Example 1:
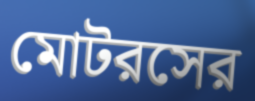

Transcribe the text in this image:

মোটরসের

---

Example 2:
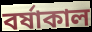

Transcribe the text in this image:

বর্ষাকাল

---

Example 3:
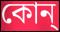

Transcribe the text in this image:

কোন্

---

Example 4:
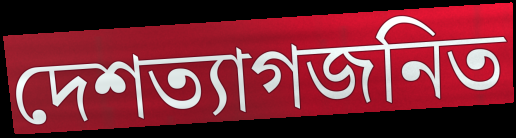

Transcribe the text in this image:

দেশত্যাগজনিত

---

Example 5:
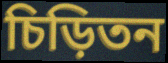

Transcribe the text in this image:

চিড়িতন